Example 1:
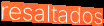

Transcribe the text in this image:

resaltados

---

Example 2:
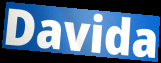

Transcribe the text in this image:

Davida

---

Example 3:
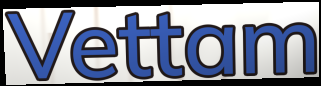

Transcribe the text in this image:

Vettam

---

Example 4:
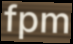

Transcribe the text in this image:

fpm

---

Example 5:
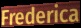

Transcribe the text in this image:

Frederica